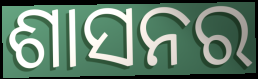
ଶାସନର